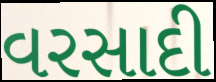
વરસાદી